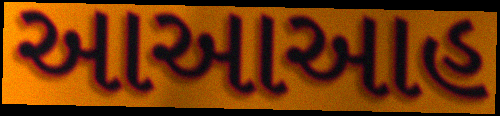
આઆઆહ